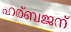
ഹര്ബജന്